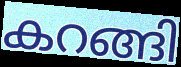
കറങ്ങി